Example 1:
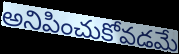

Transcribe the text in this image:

అనిపించుకోవడమే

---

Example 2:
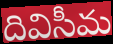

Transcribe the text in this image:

దివిసీమ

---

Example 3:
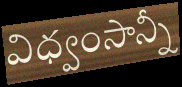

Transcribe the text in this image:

విధ్వంసాన్నీ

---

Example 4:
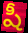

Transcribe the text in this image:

షీ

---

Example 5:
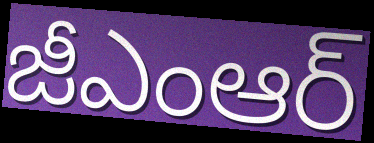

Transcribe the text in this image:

జీఎంఆర్